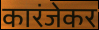
कारंजेकर